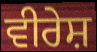
ਵੀਰੇਸ਼